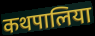
कथपालिया